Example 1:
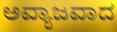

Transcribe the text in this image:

ಅವ್ಯಾಜವಾದ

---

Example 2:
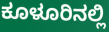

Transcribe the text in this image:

ಕೂಳೂರಿನಲ್ಲಿ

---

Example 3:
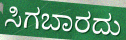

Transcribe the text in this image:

ಸಿಗಬಾರದು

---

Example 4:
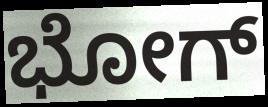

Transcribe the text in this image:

ಭೋಗ್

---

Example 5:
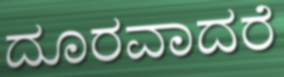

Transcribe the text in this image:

ದೂರವಾದರೆ